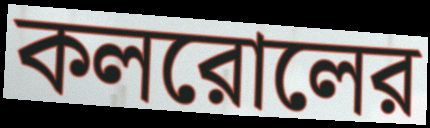
কলরোলের